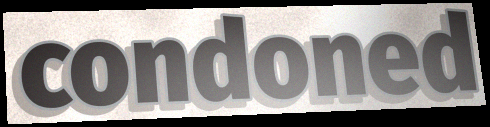
condoned